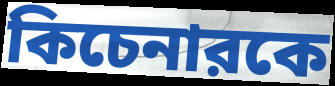
কিচেনারকে